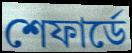
শেফার্ডে